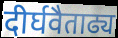
दीर्घवैताढ्य